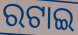
ରଟାଇ